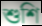
শুশি